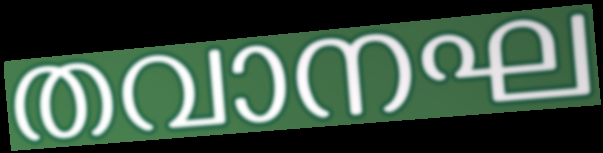
തവാനഘ